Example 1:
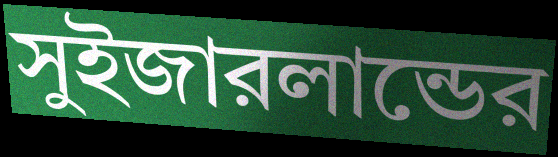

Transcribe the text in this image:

সুইজারলান্ডের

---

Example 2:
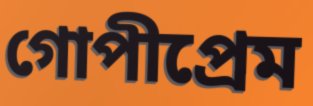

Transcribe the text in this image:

গোপীপ্রেম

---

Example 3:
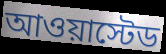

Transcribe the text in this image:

আওয়াস্টেড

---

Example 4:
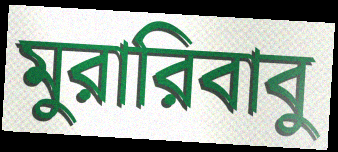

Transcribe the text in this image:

মুরারিবাবু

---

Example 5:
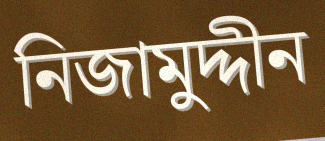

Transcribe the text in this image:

নিজামুদ্দীন